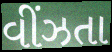
વીંઝતા